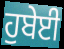
ਹੁਬੇਈ